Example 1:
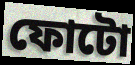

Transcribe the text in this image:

ফোটো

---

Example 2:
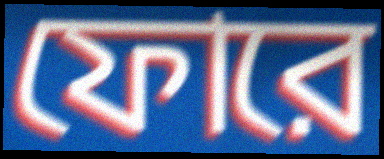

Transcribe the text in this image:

ফোরে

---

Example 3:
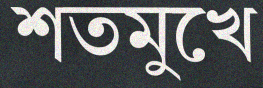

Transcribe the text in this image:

শতমুখে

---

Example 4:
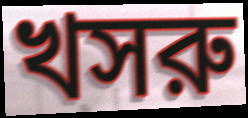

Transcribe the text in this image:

খসরু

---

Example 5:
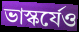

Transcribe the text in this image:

ভাস্কর্যেও